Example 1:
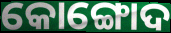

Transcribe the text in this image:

କୋଙ୍ଗୋଦ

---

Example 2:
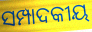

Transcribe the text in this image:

ସମ୍ପାଦକୀୟ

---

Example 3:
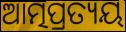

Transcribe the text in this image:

ଆତ୍ମପ୍ରତ୍ୟୟ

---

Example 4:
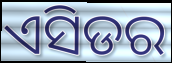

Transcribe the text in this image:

ଏସିଡର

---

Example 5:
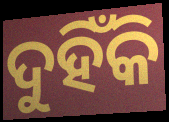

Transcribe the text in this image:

ଦୁହିଁକି